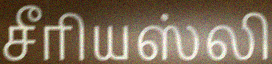
சீரியஸ்லி